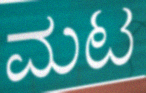
ಮಟ